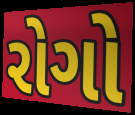
રોગો